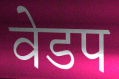
वेडप